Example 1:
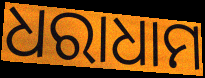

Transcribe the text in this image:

ଧରାଧାମ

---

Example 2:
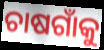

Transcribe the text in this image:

ଚାଷଗାଁକୁ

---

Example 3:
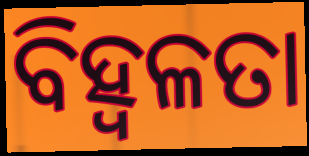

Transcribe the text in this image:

ବିହ୍ଵଳତା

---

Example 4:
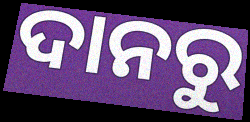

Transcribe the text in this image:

ଦାନରୁ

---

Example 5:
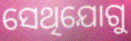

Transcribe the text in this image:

ସେଥିଯୋଗୁ